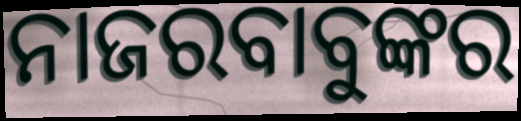
ନାଜରବାବୁଙ୍କର